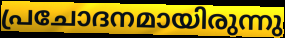
പ്രചോദനമായിരുന്നു